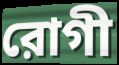
রোগী